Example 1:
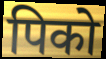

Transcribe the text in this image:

पिको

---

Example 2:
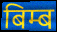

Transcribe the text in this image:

बिम्ब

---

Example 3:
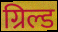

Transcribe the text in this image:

ग्रिल्ड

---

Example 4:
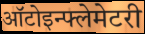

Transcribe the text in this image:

ऑटोइन्फ्लेमेटरी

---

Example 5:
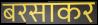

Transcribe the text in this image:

बरसाकर